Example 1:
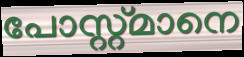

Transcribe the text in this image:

പോസ്റ്റ്മാനെ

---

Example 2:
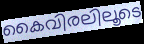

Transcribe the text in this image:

കൈവിരലിലൂടെ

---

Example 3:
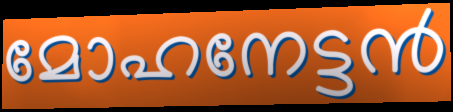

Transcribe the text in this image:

മോഹനേട്ടൻ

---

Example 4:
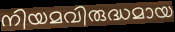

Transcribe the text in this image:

നിയമവിരുദ്ധമായ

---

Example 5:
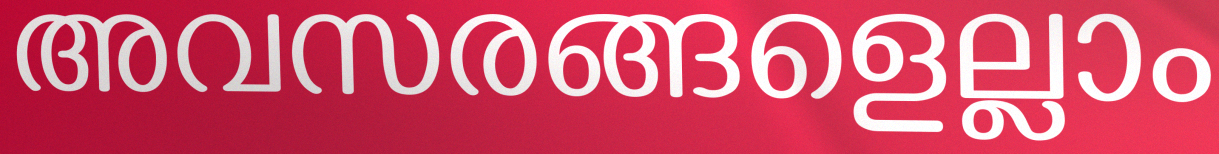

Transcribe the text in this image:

അവസരങ്ങളെല്ലാം